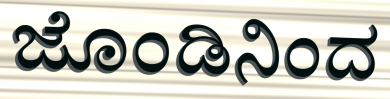
ಜೊಂಡಿನಿಂದ